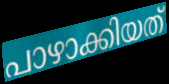
പാഴാക്കിയത്